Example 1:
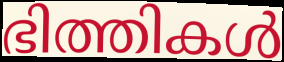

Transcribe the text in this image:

ഭിത്തികൾ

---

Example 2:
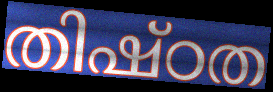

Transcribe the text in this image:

തിഷ്ഠത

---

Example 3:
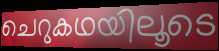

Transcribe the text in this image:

ചെറുകഥയിലൂടെ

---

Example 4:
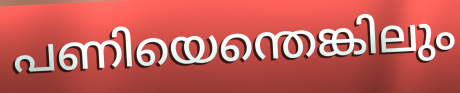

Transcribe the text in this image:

പണിയെന്തെങ്കിലും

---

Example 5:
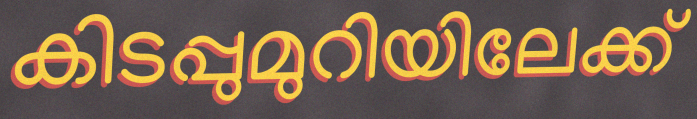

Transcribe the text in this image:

കിടപ്പുമുറിയിലേക്ക്